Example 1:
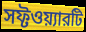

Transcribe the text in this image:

সফ্টওয়্যারটি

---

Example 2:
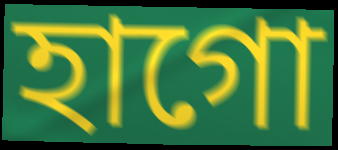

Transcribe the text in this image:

হাগো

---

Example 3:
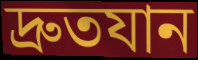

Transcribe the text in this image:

দ্রুতযান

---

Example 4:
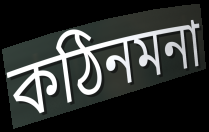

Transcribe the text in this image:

কঠিনমনা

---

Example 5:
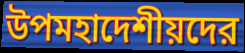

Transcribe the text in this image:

উপমহাদেশীয়দের